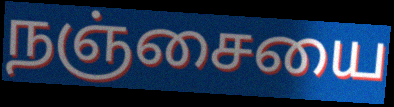
நஞ்சையை